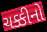
ચક્કીનો